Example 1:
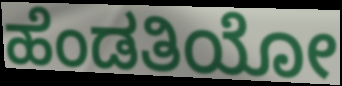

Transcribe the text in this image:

ಹೆಂಡತಿಯೋ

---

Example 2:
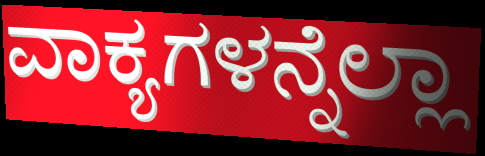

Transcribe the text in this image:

ವಾಕ್ಯಗಳನ್ನೆಲ್ಲಾ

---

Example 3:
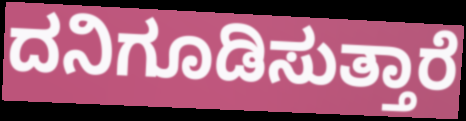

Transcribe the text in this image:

ದನಿಗೂಡಿಸುತ್ತಾರೆ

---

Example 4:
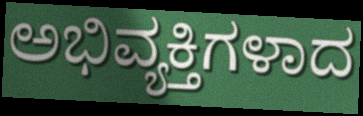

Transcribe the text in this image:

ಅಭಿವ್ಯಕ್ತಿಗಳಾದ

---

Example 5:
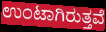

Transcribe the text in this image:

ಉಂಟಾಗಿರುತ್ತವೆ